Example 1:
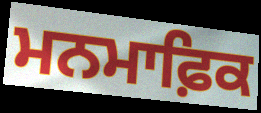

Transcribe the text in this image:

ਮਨਮਾਫ਼ਿਕ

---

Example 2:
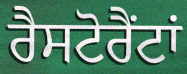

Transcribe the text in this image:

ਰੈਸਟੋਰੈਂਟਾਂ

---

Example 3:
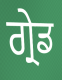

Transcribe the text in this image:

ਗ੍ਰੇਡ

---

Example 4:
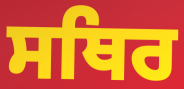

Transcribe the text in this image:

ਸਥਿਰ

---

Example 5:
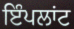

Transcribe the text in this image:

ਇੰਪਲਾਂਟ